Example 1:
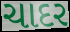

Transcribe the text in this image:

ચાદર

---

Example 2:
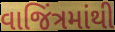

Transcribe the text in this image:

વાજિંત્રમાંથી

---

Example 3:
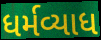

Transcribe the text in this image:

ધર્મવ્યાધ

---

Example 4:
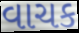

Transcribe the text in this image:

વાચક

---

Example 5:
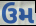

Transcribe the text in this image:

ઉમ